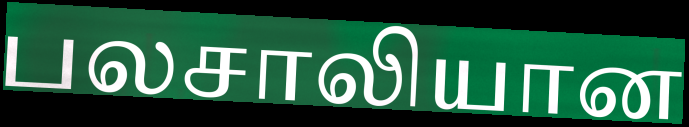
பலசாலியான